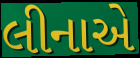
લીનાએ